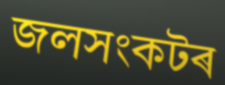
জলসংকটৰ